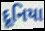
દૂનિયા